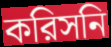
করিসনি